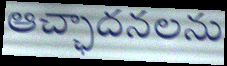
ఆచ్ఛాదనలను